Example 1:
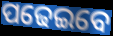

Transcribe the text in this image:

ପଢେଇବେ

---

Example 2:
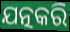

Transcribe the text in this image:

ଯତ୍ନକରି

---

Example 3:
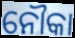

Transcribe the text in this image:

ନୌକା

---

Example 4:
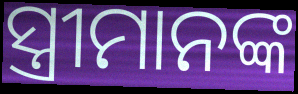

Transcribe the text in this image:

ସ୍ତ୍ରୀମାନଙ୍କ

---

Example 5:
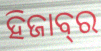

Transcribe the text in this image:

ହିଜାବ୍‌ର